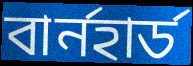
বার্নহার্ড